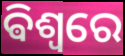
ଵିଶ୍ୱରେ